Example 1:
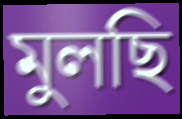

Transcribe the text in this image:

মুলছি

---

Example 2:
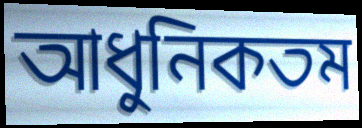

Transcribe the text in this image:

আধুনিকতম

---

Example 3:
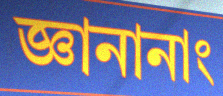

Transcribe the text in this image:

জ্ঞানানাং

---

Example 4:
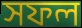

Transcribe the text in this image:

সফল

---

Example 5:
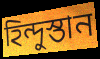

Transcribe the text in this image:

হিন্দুস্তান